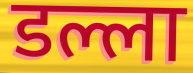
डल्ला